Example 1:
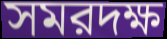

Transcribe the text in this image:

সমরদক্ষ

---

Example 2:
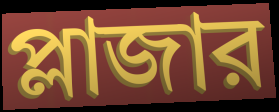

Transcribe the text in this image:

প্লাজার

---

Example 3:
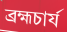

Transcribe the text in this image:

ব্রহ্মচার্য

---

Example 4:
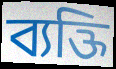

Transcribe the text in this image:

ব্যক্তি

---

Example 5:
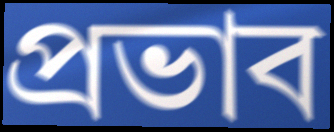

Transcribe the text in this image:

প্রভাব